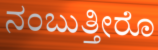
ನಂಬುತ್ತೀರೊ